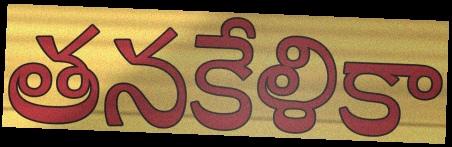
తనకేళికా